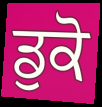
ਡੁਕੋ